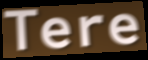
Tere